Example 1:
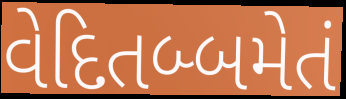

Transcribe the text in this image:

વેદિતબ્બમેતં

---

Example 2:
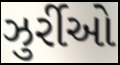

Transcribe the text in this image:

ઝુર્રીઓ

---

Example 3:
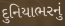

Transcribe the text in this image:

દુનિયાભરનું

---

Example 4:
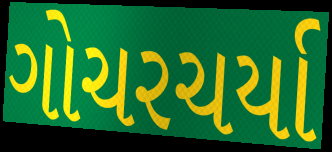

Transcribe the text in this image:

ગોચરચર્યા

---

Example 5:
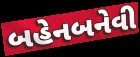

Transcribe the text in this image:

બહેનબનેવી